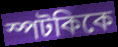
স্পটকিকে